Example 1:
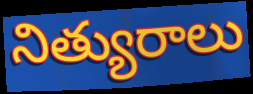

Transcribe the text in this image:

నిత్యురాలు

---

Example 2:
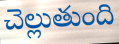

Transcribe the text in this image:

చెల్లుతుంది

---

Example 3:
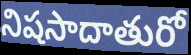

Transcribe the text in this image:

నిషసాదాతురో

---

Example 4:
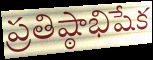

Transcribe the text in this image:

ప్రతిష్ఠాభిషేక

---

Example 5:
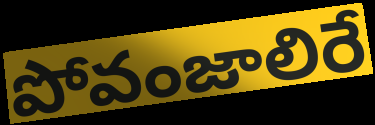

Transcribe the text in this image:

పోవంజాలిరే